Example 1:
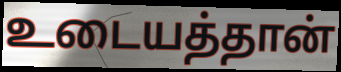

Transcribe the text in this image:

உடையத்தான்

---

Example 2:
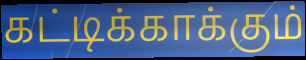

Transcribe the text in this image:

கட்டிக்காக்கும்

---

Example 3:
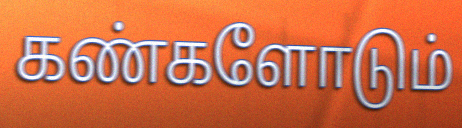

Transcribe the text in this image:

கண்களோடும்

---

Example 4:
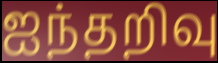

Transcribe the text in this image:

ஐந்தறிவு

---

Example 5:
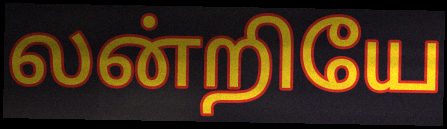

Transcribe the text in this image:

லன்றியே